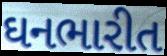
ઘનભારીત